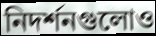
নিদর্শনগুলোও